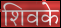
शिवके